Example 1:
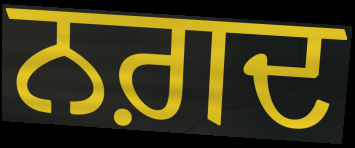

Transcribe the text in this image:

ਨਗ਼ਦ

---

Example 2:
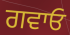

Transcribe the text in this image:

ਗਵਾਓ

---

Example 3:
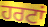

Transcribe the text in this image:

ਹਰਟਾਂ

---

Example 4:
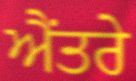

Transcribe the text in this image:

ਐਂਤਰੇ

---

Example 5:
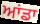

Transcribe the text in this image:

ਆਂਡਾ